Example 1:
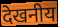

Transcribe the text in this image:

देखनीय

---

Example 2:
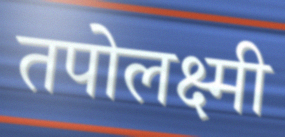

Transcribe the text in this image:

तपोलक्ष्मी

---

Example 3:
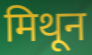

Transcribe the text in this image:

मिथून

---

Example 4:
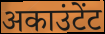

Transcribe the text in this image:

अकाउंटेंट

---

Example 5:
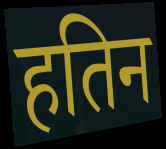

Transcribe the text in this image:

हतिन